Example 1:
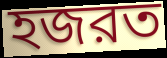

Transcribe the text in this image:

হজরত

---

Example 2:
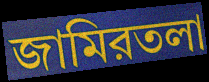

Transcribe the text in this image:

জামিরতলা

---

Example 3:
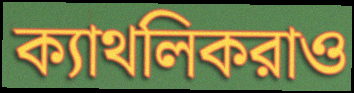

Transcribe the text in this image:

ক্যাথলিকরাও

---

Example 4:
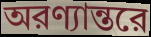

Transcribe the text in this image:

অরণ্যান্তরে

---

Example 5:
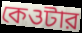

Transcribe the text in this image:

কেওটার